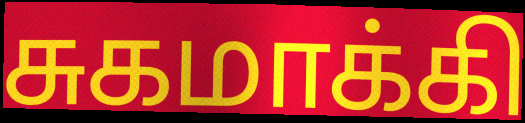
சுகமாக்கி